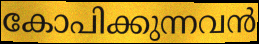
കോപിക്കുന്നവൻ